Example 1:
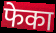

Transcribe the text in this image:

फेका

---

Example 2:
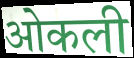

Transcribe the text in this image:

ओकली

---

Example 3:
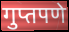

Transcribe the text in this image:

गुप्तपणे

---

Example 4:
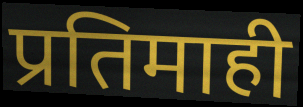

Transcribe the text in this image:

प्रतिमाही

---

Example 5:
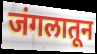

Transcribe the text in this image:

जंगलातून